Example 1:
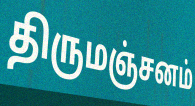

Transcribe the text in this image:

திருமஞ்சனம்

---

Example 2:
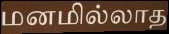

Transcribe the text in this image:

மனமில்லாத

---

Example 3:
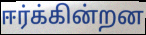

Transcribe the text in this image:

ஈர்க்கின்றன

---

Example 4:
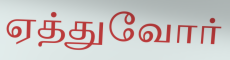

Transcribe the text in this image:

ஏத்துவோர்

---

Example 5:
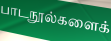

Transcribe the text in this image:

பாடநூல்களைக்